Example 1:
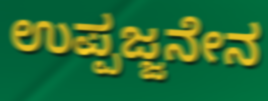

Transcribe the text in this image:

ಉಪ್ಪಜ್ಜನೇನ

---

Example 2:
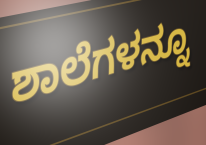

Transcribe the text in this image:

ಶಾಲೆಗಳನ್ನೂ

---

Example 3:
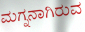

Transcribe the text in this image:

ಮಗ್ನನಾಗಿರುವ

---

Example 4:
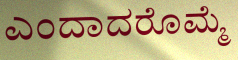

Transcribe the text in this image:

ಎಂದಾದರೊಮ್ಮೆ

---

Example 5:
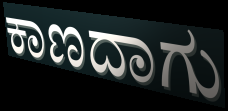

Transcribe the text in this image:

ಕಾಣದಾಗು